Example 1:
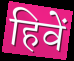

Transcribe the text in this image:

हिवें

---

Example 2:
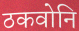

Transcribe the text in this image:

ठकवोनि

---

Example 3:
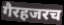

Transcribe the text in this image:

गैरहजरच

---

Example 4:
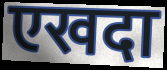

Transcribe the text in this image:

एखदा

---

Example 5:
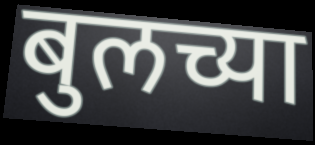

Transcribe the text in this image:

बुलच्या